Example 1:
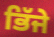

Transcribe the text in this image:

ਭਿੱਜੇ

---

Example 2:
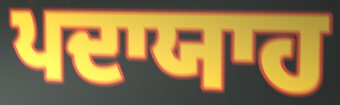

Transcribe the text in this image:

ਪਦਾਯਾਹ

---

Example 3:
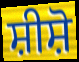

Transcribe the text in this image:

ਸ਼ੀਸ਼ੋ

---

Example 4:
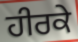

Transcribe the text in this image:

ਹੀਰਕੇ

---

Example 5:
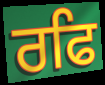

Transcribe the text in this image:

ਰਫਿ